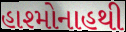
હાશ્મોનાહથી